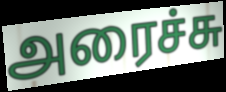
அரைச்சு